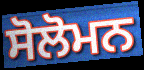
ਸੋਲੋਮਨ